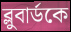
ব্লুবার্ডকে